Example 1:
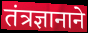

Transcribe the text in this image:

तंत्रज्ञानाने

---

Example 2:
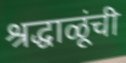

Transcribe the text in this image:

श्रद्धाळूंची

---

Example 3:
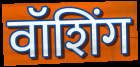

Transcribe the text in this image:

वॉशिंग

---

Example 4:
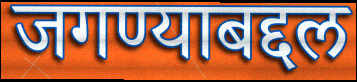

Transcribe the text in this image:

जगण्याबद्दल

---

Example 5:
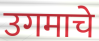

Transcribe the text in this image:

उगमाचे